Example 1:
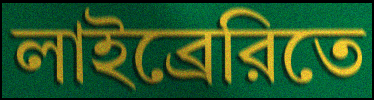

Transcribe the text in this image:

লাইব্রেরিতে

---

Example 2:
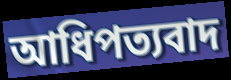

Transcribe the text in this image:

আধিপত্যবাদ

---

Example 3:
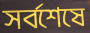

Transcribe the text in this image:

সর্বশেষে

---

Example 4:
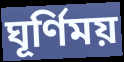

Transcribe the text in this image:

ঘূর্ণিময়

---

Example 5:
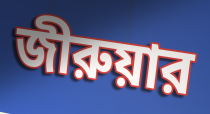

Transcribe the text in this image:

জীরুয়ার